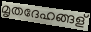
മൃതദേഹങ്ങള്